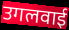
उगलवाई